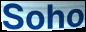
Soho